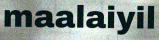
maalaiyil